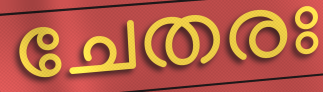
ചേതരഃ